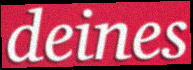
deines